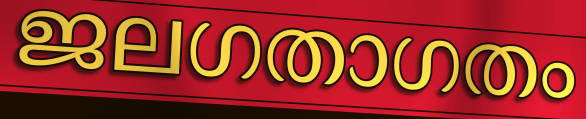
ജലഗതാഗതം